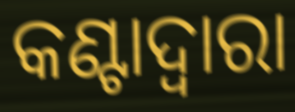
କଣ୍ଟାଦ୍ୱାରା